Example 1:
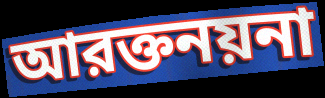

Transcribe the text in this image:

আরক্তনয়না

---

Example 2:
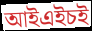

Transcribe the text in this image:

আইএইচই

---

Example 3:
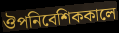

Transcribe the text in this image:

ঔপনিবেশিককালে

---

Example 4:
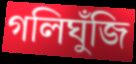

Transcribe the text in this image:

গলিঘুঁজি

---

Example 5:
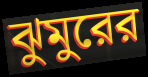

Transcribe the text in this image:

ঝুমুরের